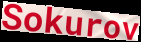
Sokurov